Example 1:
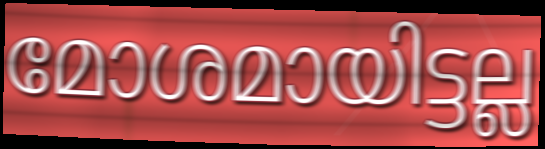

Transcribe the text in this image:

മോശമായിട്ടല്ല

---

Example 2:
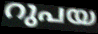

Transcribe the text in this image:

റുപയ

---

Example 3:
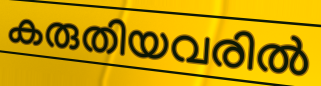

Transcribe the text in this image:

കരുതിയവരിൽ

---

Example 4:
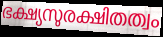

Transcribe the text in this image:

ഭക്ഷ്യസുരക്ഷിതത്വം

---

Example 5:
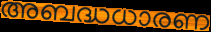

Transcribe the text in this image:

അബദ്ധധാരണ